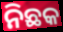
ନିଛକ